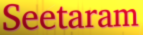
Seetaram